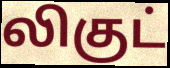
லிகுட்